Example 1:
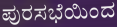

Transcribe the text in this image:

ಪುರಸಭೆಯಿಂದ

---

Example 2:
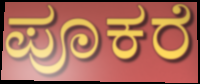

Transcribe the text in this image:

ಪೂಕರೆ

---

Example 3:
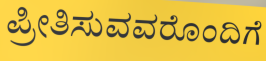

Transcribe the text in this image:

ಪ್ರೀತಿಸುವವರೊಂದಿಗೆ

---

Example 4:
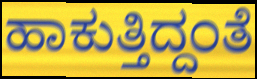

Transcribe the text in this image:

ಹಾಕುತ್ತಿದ್ದಂತೆ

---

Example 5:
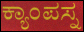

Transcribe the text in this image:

ಕ್ಯಾಂಪಸ್ನ